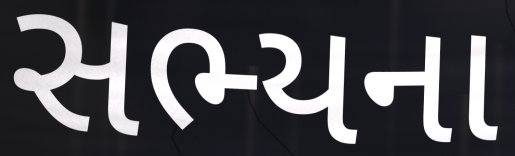
સભ્યના